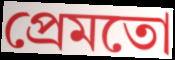
প্ৰেমতো